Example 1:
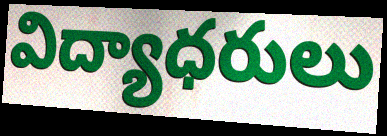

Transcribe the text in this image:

విద్యాధరులు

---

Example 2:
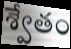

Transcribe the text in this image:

శ్వేతం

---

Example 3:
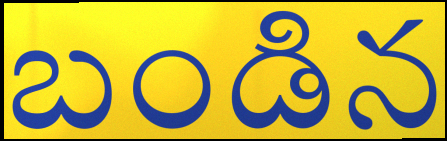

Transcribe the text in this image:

బండిన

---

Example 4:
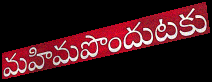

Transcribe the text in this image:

మహిమపొందుటకు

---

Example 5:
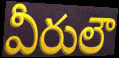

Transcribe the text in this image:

వీరులౌ